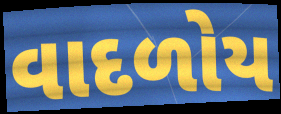
વાદળોય